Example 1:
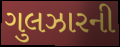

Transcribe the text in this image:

ગુલઝારની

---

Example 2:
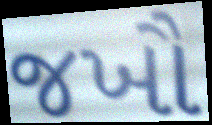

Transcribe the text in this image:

જખૌ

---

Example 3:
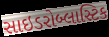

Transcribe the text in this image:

સાઇડરોબ્લાસ્ટિક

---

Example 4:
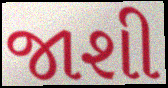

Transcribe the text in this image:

જાશી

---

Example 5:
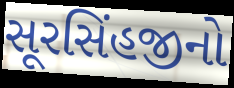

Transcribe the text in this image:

સૂરસિંહજીનો